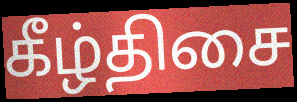
கீழ்திசை